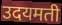
उदयमती